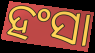
ହଂସା